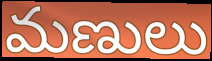
మణులు